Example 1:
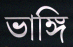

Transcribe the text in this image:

ভাঙ্গি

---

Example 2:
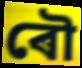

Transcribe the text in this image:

ৰৌ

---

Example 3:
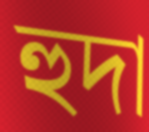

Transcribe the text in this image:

হুদা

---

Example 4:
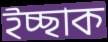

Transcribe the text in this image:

ইচ্ছাক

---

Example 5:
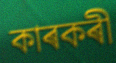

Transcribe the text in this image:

কাৰকৰী